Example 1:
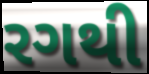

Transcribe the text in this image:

રગથી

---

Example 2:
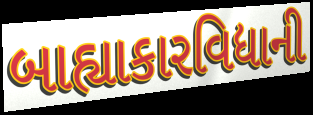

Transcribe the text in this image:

બાહ્યાકારવિદ્યાની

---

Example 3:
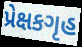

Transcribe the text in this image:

પ્રેક્ષકગૃહ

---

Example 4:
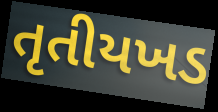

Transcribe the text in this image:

તૃતીયખડ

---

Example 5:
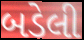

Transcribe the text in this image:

બડેલી